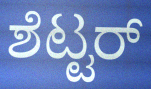
ಶೆಟ್ಟರ್